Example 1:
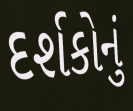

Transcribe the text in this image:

દર્શકોનું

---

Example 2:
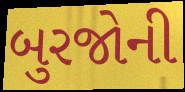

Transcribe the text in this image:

બુરજોની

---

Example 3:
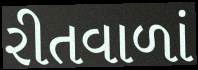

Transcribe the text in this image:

રીતવાળાં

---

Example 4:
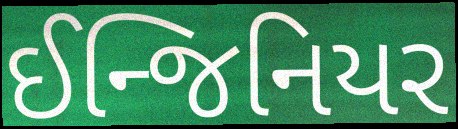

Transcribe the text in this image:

ઈન્જિનિયર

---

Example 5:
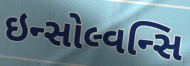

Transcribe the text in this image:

ઇન્સોલ્વન્સિ